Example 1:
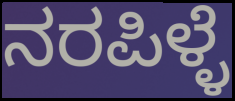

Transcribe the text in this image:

ನರಪಿಳ್ಳೆ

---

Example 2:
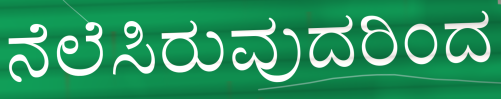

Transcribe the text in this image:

ನೆಲೆಸಿರುವುದರಿಂದ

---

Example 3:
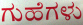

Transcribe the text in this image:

ಗುಹೆಗಳು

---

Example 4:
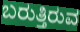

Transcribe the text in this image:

ಬರುತ್ತಿರುವ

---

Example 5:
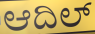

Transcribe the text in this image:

ಆದಿಲ್